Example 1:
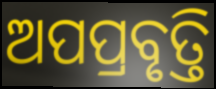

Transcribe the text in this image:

ଅପପ୍ରବୃତ୍ତି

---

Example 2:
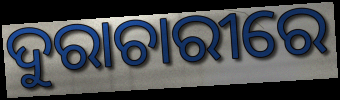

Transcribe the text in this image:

ଦୁରାଚାରୀରେ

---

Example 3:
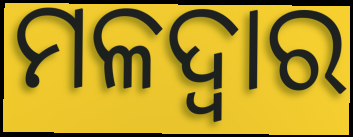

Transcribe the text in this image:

ମଳଦ୍ଵାର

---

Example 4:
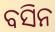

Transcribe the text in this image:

ବସିନ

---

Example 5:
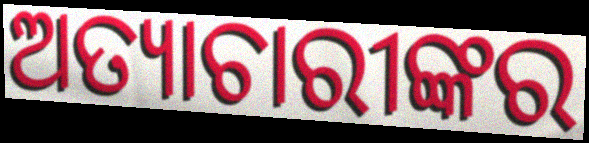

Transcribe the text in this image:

ଅତ୍ୟାଚାରୀଙ୍କର